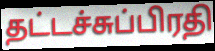
தட்டச்சுப்பிரதி